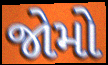
જોમો